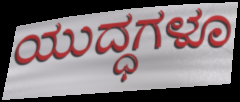
ಯುದ್ಧಗಳೂ